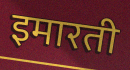
इमारती